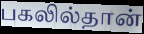
பகலில்தான்